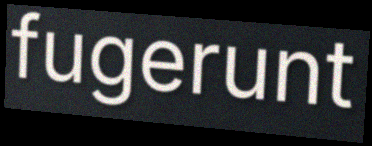
fugerunt